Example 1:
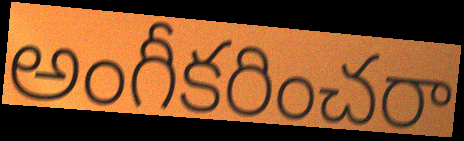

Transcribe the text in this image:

అంగీకరించరా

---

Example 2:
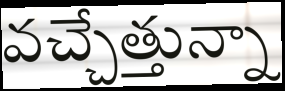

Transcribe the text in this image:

వచ్చేత్తున్నా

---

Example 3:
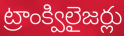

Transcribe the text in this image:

ట్రాంక్విలైజర్లు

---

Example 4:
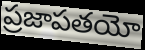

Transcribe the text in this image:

ప్రజాపతయో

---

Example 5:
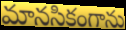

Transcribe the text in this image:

మానసికంగాను